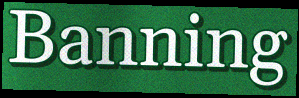
Banning